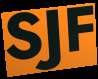
SJF